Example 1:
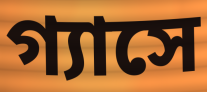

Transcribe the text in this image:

গ্যাসে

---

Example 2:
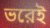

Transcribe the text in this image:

ভরেই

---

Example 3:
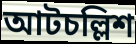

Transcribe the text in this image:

আটচল্লিশ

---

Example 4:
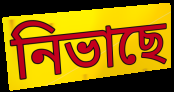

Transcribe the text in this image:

নিভাছে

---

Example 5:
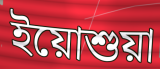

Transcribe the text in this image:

ইয়োশুয়া